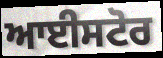
ਆਈਸਟੋਰ